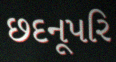
છદનૂપરિ